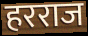
हरराज